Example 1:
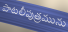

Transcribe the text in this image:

పాటలీపుత్రమును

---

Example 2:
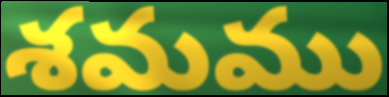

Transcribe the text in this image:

శమము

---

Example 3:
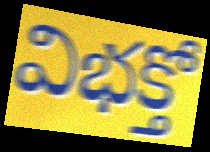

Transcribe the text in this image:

విభక్తో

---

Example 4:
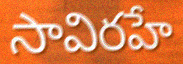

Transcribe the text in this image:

సావిరహే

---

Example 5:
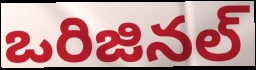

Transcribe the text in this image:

ఒరిజినల్